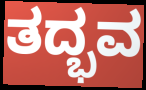
ತದ್ಭವ